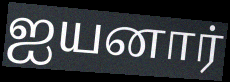
ஐயனார்